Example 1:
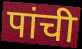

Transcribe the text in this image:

पांची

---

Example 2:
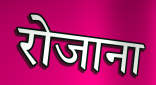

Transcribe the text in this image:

रोजाना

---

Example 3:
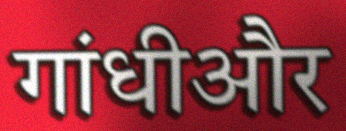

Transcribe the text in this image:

गांधीऔर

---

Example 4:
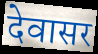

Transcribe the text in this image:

देवासर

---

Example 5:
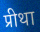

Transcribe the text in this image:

प्रीथा